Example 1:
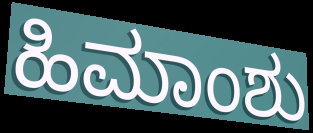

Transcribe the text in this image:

ಹಿಮಾಂಶು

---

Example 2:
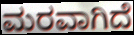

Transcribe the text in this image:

ಮರವಾಗಿದೆ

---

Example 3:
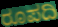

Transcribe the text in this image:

ರೂಪದಿ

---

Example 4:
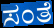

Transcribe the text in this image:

ಸಂತೆ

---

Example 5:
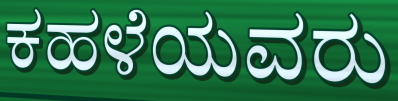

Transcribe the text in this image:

ಕಹಳೆಯವರು